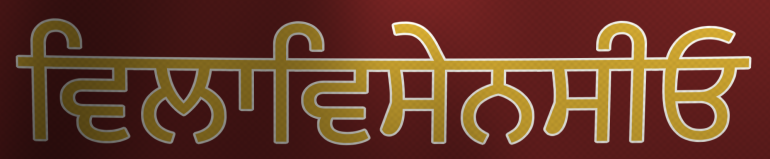
ਵਿਲਾਵਿਸੇਨਸੀਓ